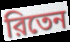
রিতেন